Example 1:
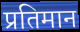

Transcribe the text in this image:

प्रतिमान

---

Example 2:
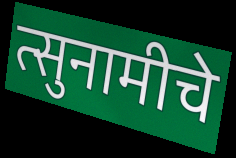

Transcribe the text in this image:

त्सुनामीचे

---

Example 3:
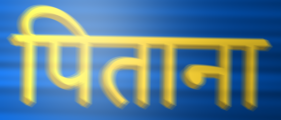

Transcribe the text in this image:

पिताना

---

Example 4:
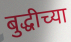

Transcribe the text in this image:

बुद्धीच्या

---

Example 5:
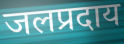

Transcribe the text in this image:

जलप्रदाय